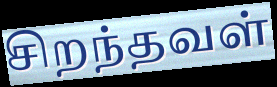
சிறந்தவள்